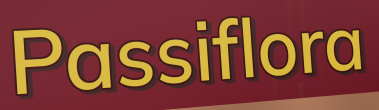
Passiflora